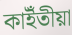
কাইঁতীয়া